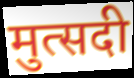
मुत्सदी